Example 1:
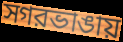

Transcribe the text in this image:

সগরভাঙায়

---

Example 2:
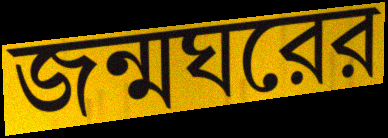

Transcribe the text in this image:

জন্মঘরের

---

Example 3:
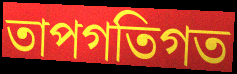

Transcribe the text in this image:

তাপগতিগত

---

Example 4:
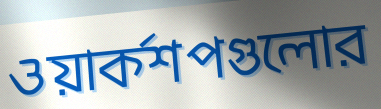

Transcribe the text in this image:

ওয়ার্কশপগুলোর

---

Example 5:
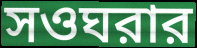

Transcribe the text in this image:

সওঘরার